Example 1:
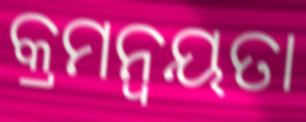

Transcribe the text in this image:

କ୍ରମନ୍ବୟତା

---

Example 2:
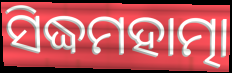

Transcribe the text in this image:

ସିଦ୍ଧମହାତ୍ମା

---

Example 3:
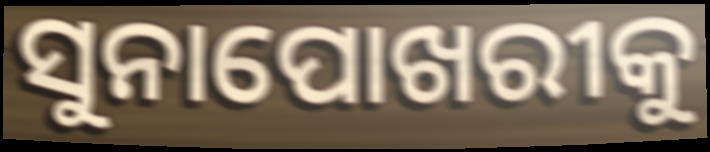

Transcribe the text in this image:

ସୁନାପୋଖରୀକୁ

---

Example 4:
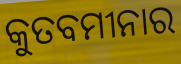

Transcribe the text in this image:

କୁତବମୀନାର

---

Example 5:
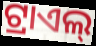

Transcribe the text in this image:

ଟ୍ରାଏଲ୍